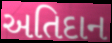
અતિદાન